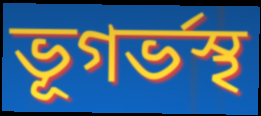
ভূগৰ্ভস্থ